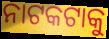
ନାଟକଟାକୁ